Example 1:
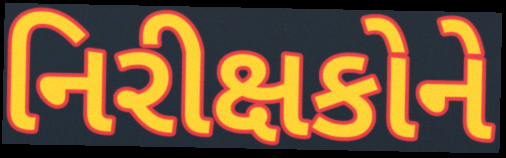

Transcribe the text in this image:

નિરીક્ષકોને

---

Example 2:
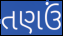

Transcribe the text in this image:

તણઉં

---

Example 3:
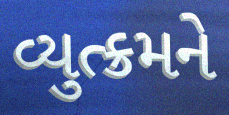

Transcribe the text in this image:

વ્યુત્ક્રમને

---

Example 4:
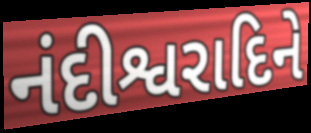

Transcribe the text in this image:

નંદીશ્વરાદિને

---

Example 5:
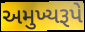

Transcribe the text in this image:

અમુખ્યરૂપે